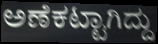
ಅಣೆಕಟ್ಟಾಗಿದ್ದು